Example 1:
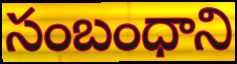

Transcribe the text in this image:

సంబంధాని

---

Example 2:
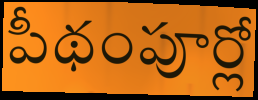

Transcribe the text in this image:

పీథంపూర్లో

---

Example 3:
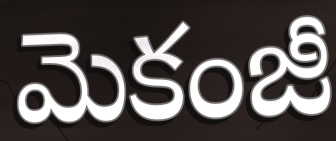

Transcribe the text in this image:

మెకంజీ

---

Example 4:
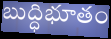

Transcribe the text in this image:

బుద్ధిభూతం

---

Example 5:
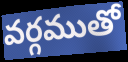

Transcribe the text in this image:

వర్గముతో